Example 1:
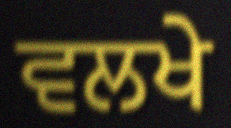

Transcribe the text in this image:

ਵਲਖੇ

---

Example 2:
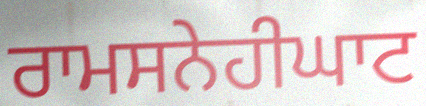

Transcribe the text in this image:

ਰਾਮਸਨੇਹੀਘਾਟ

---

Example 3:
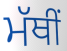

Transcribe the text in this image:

ਮੱਥੀਂ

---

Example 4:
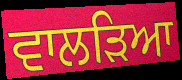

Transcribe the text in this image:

ਵਾਲੜਿਆ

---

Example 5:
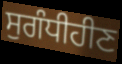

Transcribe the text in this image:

ਸੁਗੰਧੀਹੀਣ